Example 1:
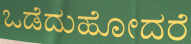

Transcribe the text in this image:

ಒಡೆದುಹೋದರೆ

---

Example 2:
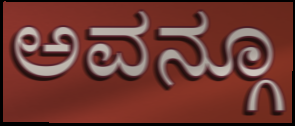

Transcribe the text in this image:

ಅವನ್ಗೂ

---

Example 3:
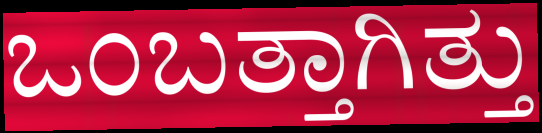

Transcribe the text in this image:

ಒಂಬತ್ತಾಗಿತ್ತು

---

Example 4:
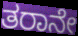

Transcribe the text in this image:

ತರಾನೇ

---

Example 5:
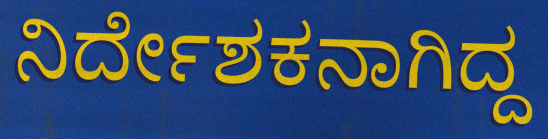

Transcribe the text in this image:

ನಿರ್ದೇಶಕನಾಗಿದ್ದ